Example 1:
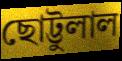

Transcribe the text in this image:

ছোট্টুলাল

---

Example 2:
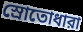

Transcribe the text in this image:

স্রোতোধারা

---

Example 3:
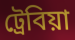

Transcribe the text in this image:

ট্রেবিয়া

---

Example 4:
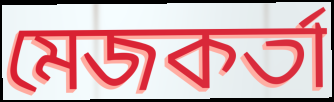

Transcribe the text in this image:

মেজকর্তা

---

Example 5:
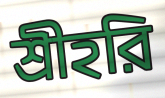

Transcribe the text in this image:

শ্রীহরি